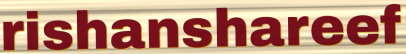
rishanshareef